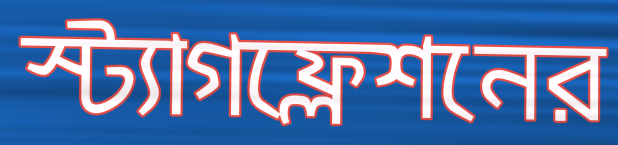
স্ট্যাগফ্লেশনের